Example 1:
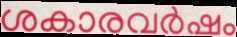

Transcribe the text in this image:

ശകാരവർഷം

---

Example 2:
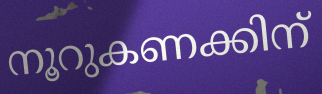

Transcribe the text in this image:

നൂറുകണക്കിന്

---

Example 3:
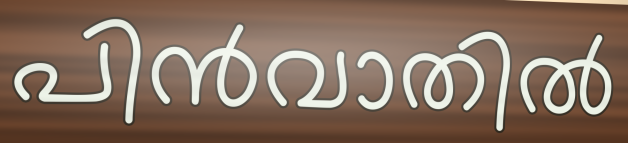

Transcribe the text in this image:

പിൻവാതിൽ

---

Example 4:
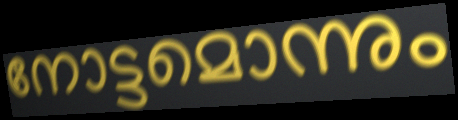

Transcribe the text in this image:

നോട്ടമൊന്നും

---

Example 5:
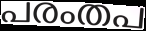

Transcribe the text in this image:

പരംതപ